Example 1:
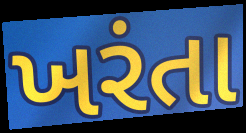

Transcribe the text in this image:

ખરંતા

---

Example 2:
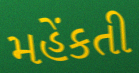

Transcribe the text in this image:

મહેંકતી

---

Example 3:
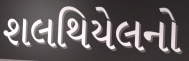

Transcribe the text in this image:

શલથિયેલનો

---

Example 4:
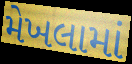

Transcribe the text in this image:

મેખલામાં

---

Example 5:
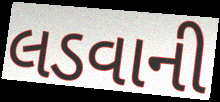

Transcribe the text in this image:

લડવાની